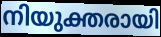
നിയുക്തരായി